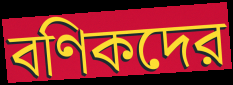
বণিকদের